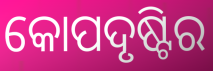
କୋପଦୃଷ୍ଟିର